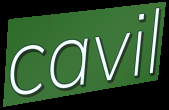
cavil